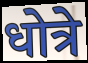
धोत्रे